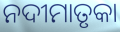
ନଦୀମାତୃକା